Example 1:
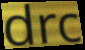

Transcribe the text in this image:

drc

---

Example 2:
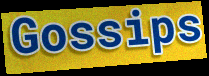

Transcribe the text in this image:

Gossips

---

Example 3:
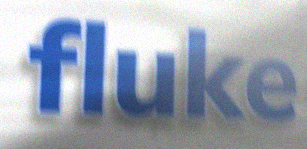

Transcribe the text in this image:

fluke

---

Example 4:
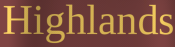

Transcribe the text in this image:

Highlands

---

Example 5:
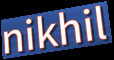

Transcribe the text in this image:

nikhil